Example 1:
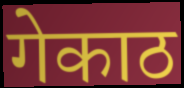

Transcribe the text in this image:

गेकाठ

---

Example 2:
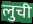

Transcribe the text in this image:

लुची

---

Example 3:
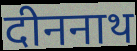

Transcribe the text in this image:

दीननाथ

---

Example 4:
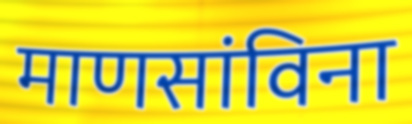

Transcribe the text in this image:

माणसांविना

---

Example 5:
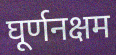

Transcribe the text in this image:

घूर्णनक्षम